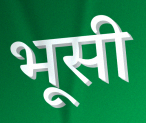
भूसी